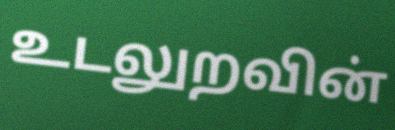
உடலுறவின்